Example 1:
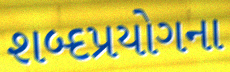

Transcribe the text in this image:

શબ્દપ્રયોગના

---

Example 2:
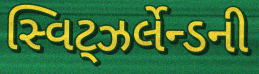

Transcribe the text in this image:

સ્વિટ્ઝર્લેન્ડની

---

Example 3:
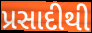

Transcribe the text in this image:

પ્રસાદીથી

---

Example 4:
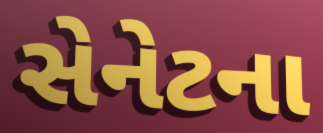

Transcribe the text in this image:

સેનેટના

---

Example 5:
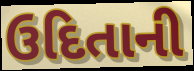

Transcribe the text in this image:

ઉદિતાની